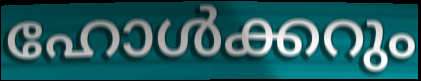
ഹോൾക്കറും